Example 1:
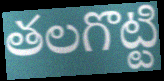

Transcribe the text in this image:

తలగొట్టి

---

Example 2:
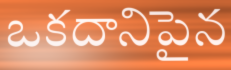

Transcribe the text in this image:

ఒకదానిపైన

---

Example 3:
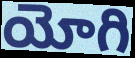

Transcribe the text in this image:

యోగి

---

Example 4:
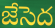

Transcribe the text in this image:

జేసెద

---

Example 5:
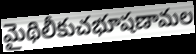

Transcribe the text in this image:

మైథిలీకుచభూషణామల